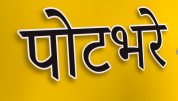
पोटभरे